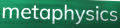
metaphysics